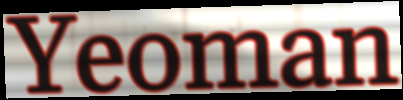
Yeoman